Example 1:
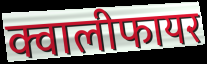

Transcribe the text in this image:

क्वालीफायर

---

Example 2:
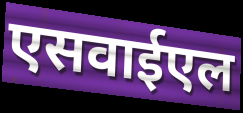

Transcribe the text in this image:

एसवाईएल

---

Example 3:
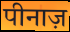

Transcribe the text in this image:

पीनाज़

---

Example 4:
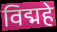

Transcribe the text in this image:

विद्महे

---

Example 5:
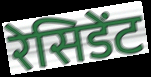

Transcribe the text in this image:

रेसिडेंट